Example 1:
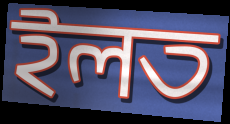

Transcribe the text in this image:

ইলত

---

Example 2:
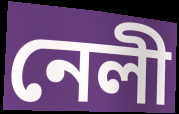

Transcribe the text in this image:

নেলী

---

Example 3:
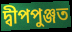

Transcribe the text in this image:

দ্বীপপুঞ্জত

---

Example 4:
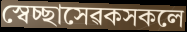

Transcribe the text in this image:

স্বেচ্ছাসেৱকসকলে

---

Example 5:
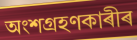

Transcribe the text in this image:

অংশগ্ৰহণকাৰীৰ